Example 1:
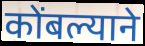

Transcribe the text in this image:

कोंबल्याने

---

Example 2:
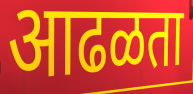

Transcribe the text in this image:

आढळता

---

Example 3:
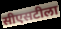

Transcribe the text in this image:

सीएसटीला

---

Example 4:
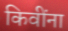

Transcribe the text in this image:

किवींना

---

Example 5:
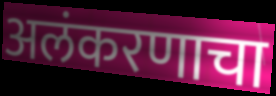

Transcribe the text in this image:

अलंकरणाचा